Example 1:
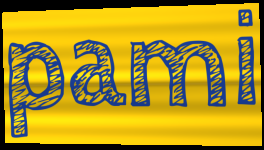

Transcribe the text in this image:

pami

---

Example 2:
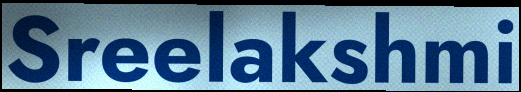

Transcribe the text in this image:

Sreelakshmi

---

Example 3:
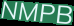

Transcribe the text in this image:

NMPB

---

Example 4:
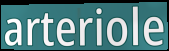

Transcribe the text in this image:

arteriole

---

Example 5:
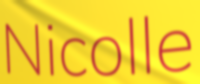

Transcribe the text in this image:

Nicolle